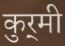
कुर्मी